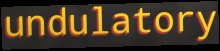
undulatory